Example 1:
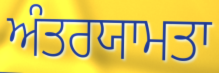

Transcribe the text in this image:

ਅੰਤਰਯਾਮਤਾ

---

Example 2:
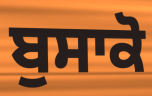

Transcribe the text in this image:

ਬੁਸਾਕੋ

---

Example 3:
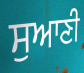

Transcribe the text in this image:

ਸੁਆਣੀ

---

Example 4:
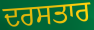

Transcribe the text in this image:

ਦਰਸਤਾਰ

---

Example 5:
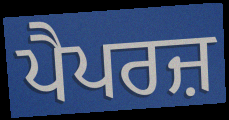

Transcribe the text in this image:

ਪੈਪਰਜ਼